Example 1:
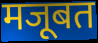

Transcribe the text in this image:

मजूबत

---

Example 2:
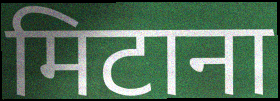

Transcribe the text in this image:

मिटाना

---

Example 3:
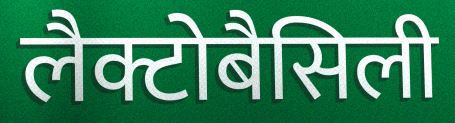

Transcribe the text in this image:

लैक्टोबैसिली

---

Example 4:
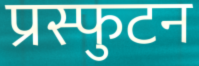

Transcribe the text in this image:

प्रस्‍फुटन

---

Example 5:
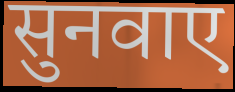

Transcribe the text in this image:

सुनवाए